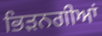
ਭਿੜਨਗੀਆਂ